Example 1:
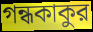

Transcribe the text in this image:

গন্ধকাকুর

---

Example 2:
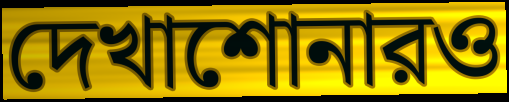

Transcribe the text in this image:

দেখাশোনারও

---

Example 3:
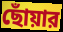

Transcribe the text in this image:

ছোঁয়ার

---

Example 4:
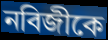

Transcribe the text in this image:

নবিজীকে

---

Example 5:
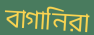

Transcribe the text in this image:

বাগানিরা